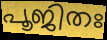
പൂജിതഃ